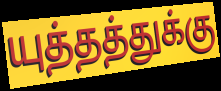
யுத்தத்துக்கு